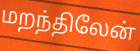
மறந்திலேன்